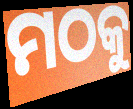
ମଠକୁ